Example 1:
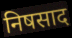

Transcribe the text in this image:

निषसाद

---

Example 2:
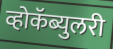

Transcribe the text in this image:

व्होकॅब्युलरी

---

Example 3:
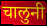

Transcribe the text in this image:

चालुनी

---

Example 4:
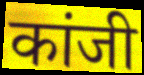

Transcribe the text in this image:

कांजी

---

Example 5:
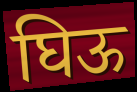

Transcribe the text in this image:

घिऊ